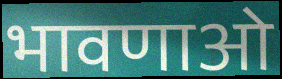
भावणाओ